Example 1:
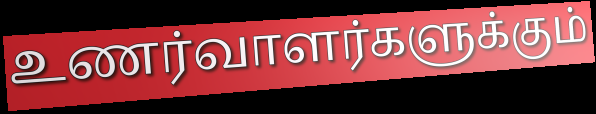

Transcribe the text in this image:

உணர்வாளர்களுக்கும்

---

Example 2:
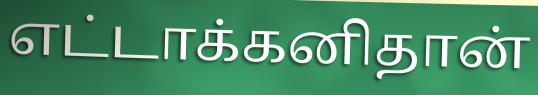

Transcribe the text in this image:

எட்டாக்கனிதான்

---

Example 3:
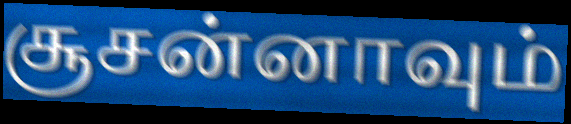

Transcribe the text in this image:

சூசன்னாவும்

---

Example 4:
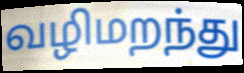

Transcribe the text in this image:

வழிமறந்து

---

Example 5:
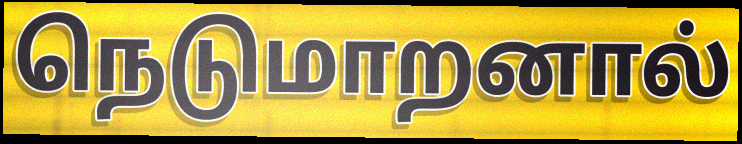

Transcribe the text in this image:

நெடுமாறனால்